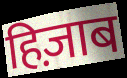
हिज़ाब